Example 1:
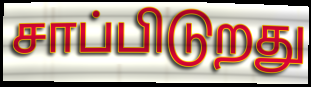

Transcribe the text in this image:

சாப்பிடுறது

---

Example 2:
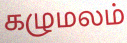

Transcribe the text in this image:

கழுமலம்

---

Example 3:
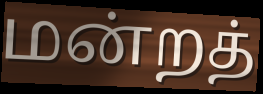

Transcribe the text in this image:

மன்றத்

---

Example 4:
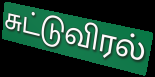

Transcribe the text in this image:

சுட்டுவிரல்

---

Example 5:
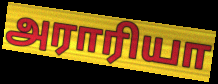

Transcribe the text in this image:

அராரியா